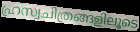
ഹ്രസ്വചിത്രങ്ങളിലൂടെ